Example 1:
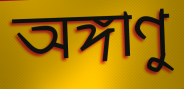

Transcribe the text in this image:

অঙ্গাণু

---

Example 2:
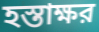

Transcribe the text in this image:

হস্তাক্ষর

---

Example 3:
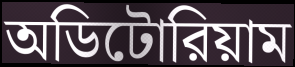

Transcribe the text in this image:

অডিটোরিয়াম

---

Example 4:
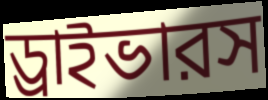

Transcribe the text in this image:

ড্রাইভারস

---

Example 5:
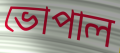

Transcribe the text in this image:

ভোপাল